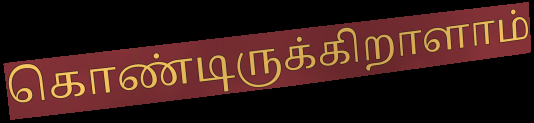
கொண்டிருக்கிறாளாம்